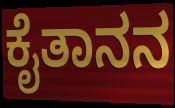
ಕೈತಾನನ